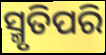
ସ୍ମୃତିପରି